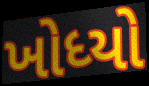
ખોધ્યો